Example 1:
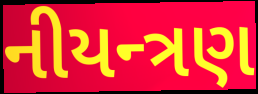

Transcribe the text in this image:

નીયન્ત્રણ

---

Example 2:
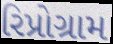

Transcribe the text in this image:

રિપ્રોગ્રામ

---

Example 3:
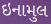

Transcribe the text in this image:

ઇનામુલ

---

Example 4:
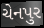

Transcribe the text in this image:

ચેનપુર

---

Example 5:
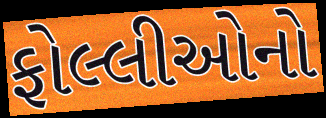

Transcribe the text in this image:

ફોલ્લીઓનો